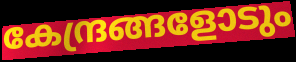
കേന്ദ്രങ്ങളോടും